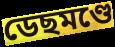
ডেছমণ্ডে